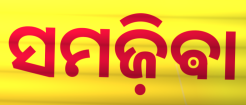
ସମଜ଼ିଵା